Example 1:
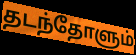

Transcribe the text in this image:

தடந்தோளும்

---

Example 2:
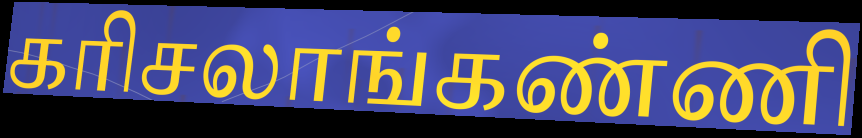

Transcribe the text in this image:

கரிசலாங்கண்ணி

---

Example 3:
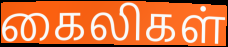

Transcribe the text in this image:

கைலிகள்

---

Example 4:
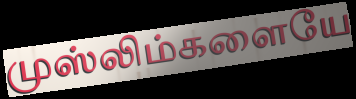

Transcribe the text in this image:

முஸ்லிம்களையே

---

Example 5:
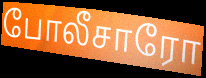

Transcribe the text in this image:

போலீசாரோ